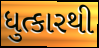
ધુત્કારથી